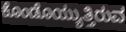
ಕೊಂಡೊಯ್ಯುತ್ತಿರುವ